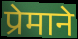
प्रेमाने